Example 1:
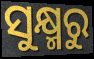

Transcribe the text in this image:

ସୁକ୍ଷ୍ମରୁ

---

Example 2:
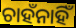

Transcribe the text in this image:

ଚାହଁନାହିଁ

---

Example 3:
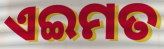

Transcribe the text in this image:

ଏଇମତ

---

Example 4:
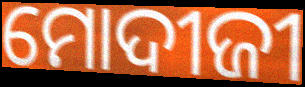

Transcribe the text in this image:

ମୋଦୀଜୀ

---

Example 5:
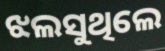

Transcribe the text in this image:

ଝଲସୁଥିଲେ